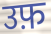
उफ़